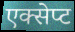
एक्सेप्ट